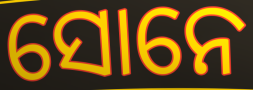
ସୋନେ